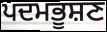
ਪਦਮਭੂਸ਼ਣ